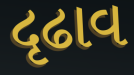
દૃઢાવ